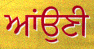
ਆਂਉਣੀ